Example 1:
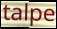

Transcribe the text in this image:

talpe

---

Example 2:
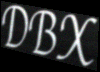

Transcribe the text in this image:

DBX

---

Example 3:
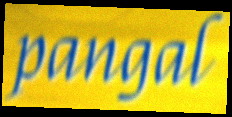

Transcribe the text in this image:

pangal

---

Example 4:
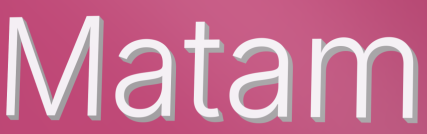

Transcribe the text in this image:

Matam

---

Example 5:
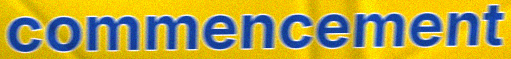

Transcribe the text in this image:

commencement